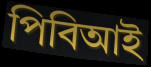
পিবিআই